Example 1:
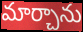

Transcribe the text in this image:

మార్చాను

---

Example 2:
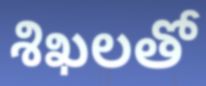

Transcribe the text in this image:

శిఖలతో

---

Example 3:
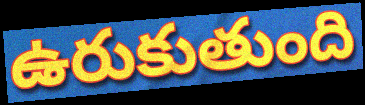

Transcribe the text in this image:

ఉరుకుతుంది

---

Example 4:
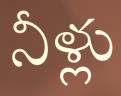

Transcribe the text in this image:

నీళ్లు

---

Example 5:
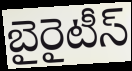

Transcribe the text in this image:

బైరైటీస్